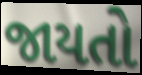
જાયતો